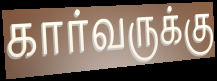
கார்வருக்கு